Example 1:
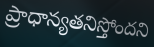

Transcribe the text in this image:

ప్రాధాన్యతనిస్తోందని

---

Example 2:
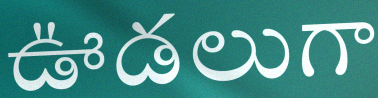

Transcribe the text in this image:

ఊడలుగా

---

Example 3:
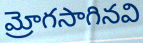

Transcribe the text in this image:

మ్రోగసాగినవి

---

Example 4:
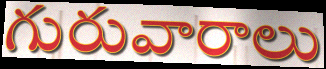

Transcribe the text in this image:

గురువారాలు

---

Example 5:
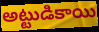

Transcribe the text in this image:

అట్టుడికాయి